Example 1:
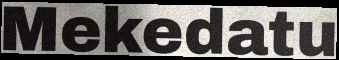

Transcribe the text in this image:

Mekedatu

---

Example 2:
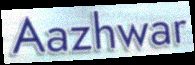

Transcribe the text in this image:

Aazhwar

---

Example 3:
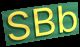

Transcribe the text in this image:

SBb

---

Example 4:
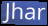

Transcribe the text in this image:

Jhar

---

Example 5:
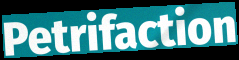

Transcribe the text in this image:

Petrifaction